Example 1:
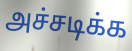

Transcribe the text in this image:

அச்சடிக்க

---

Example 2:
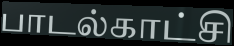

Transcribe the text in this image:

பாடல்காட்சி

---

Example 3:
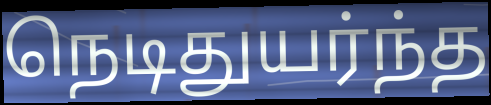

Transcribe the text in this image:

நெடிதுயர்ந்த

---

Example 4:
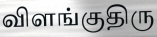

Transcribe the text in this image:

விளங்குதிரு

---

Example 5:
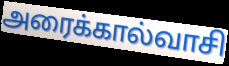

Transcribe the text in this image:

அரைக்கால்வாசி